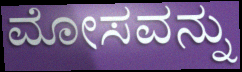
ಮೋಸವನ್ನು